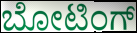
ಬೋಟಿಂಗ್